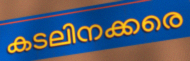
കടലിനക്കരെ